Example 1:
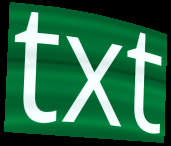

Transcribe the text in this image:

txt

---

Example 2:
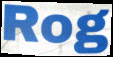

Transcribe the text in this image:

Rog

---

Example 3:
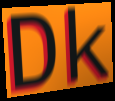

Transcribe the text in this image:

Dk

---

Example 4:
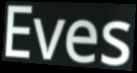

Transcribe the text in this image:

Eves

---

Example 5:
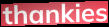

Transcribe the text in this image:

thankies